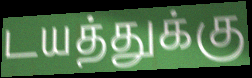
டயத்துக்கு